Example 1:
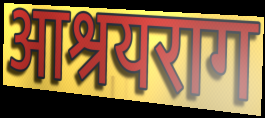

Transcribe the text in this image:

आश्रयराग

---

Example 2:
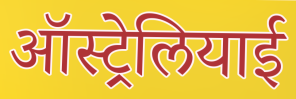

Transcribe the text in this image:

ऑस्ट्रेलियाई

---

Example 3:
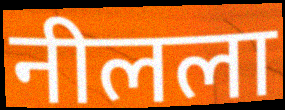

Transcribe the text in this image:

नीलला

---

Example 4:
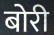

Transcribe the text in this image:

बोरी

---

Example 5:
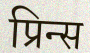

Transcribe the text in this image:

प्रिन्स